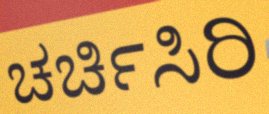
ಚರ್ಚಿಸಿರಿ